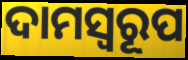
ଦାମସ୍ୱରୂପ